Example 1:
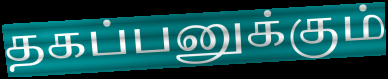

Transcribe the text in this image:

தகப்பனுக்கும்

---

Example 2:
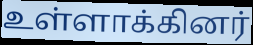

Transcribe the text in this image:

உள்ளாக்கினர்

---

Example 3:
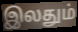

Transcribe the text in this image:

இலதும்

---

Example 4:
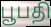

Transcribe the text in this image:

பூபதி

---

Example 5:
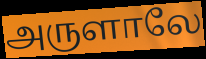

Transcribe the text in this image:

அருளாலே